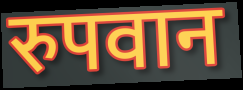
रुपवान